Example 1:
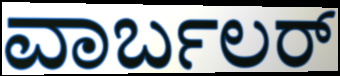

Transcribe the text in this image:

ವಾರ್ಬಲರ್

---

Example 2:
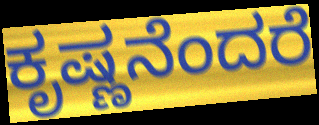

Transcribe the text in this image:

ಕೃಷ್ಣನೆಂದರೆ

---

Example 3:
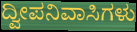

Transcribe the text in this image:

ದ್ವೀಪನಿವಾಸಿಗಳು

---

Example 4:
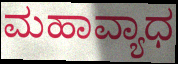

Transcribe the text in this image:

ಮಹಾವ್ಯಾಧ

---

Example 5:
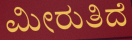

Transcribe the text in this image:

ಮೀರುತಿದೆ